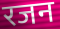
रजन